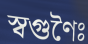
স্বগুণৈঃ